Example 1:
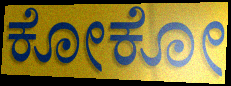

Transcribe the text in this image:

ಕೋಕೋ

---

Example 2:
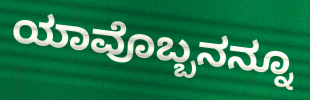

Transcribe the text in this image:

ಯಾವೊಬ್ಬನನ್ನೂ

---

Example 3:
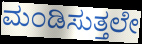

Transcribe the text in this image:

ಮಂಡಿಸುತ್ತಲೇ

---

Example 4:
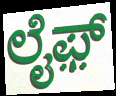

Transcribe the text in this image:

ಲೈಫ಼್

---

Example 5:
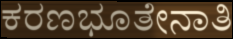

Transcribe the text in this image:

ಕರಣಭೂತೇನಾತಿ